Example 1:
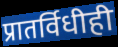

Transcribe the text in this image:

प्रातर्विधीही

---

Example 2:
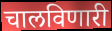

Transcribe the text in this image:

चालविणारी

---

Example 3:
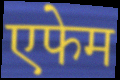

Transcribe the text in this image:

एफेम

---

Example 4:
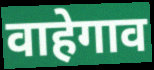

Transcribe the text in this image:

वाहेगाव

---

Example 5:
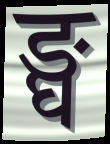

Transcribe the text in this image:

ङ्घ